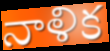
నాళిక